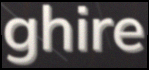
ghire